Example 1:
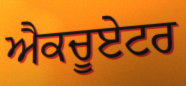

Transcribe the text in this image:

ਐਕਚੂਏਟਰ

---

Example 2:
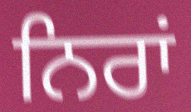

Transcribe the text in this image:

ਨਿਰਾਂ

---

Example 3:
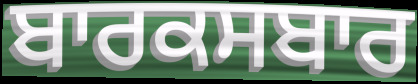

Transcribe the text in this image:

ਬਾਰਕਸਬਾਰ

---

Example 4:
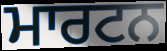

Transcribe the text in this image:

ਮਾਰਟਨ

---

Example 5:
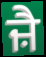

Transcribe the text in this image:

ਜ਼ੈ